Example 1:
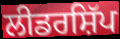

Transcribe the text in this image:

ਲੀਡਰਸ਼ਿੱਪ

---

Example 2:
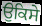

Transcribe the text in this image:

ਉਕਿਸੇ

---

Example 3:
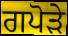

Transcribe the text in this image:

ਗਪੋੜੇ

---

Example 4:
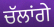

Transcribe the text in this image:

ਚੱਲਾਂਗੇ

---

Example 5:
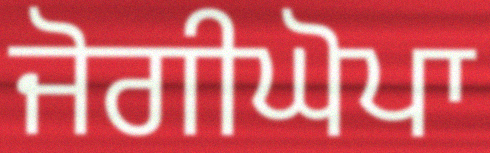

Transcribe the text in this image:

ਜੋਗੀਘੋਪਾ